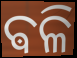
ଵଳି